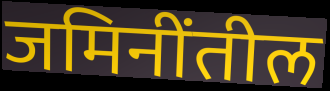
जमिनींतील